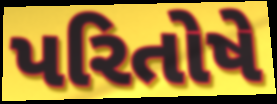
પરિતોષે